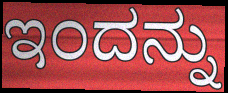
ಇಂದನ್ನು